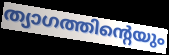
ത്യാഗത്തിന്റെയും